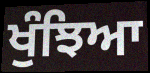
ਖੁੰਝਿਆ